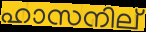
ഹാസനില്